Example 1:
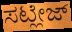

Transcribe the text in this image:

ಸಟ್ಲೇಜ್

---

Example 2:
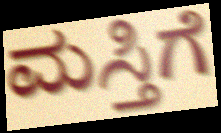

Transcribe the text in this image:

ಮಸ್ತಿಗೆ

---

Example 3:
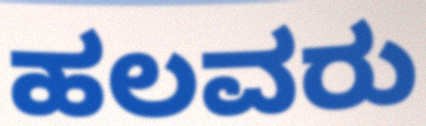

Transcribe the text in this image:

ಹಲವರು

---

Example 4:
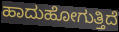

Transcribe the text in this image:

ಹಾದುಹೋಗುತ್ತಿದೆ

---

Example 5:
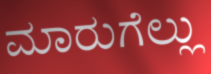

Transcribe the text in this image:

ಮಾರುಗೆಲ್ಲು